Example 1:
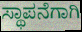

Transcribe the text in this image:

ಸ್ಥಾಪನೆಗಾಗಿ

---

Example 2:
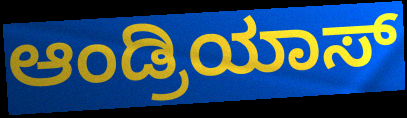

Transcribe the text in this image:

ಆಂಡ್ರಿಯಾಸ್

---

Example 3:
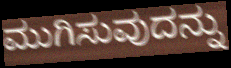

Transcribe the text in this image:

ಮುಗಿಸುವುದನ್ನು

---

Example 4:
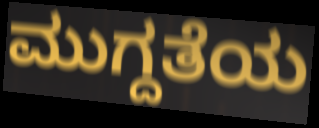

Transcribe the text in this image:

ಮುಗ್ದತೆಯ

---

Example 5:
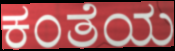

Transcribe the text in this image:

ಕಂತೆಯ